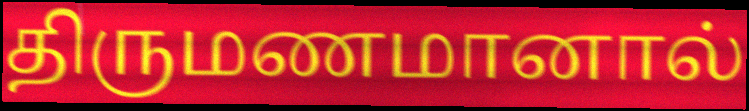
திருமணமானால்